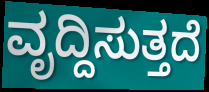
ವೃದ್ದಿಸುತ್ತದೆ